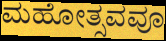
ಮಹೋತ್ಸವವೂ